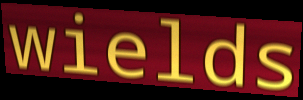
wields